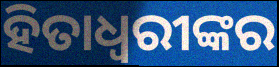
ହିତାଧ୍ଵରୀଙ୍କର